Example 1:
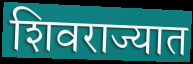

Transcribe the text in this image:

शिवराज्यात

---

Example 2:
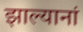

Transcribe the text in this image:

झाल्यानां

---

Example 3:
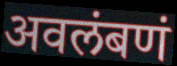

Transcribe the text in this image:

अवलंबणं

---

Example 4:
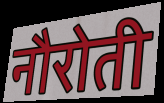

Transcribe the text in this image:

नौरोती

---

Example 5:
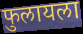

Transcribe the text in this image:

फुलायला